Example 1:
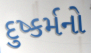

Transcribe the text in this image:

દુષ્કર્મનો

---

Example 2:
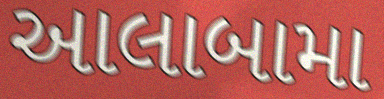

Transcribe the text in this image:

આલાબામા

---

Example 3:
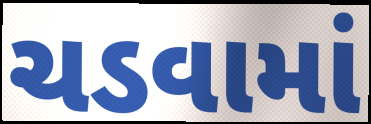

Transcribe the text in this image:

ચડવામાં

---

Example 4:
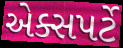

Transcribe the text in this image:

એક્સપર્ટે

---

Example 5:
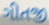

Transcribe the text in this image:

ગીતજી